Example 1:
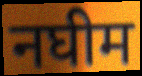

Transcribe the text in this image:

नघीम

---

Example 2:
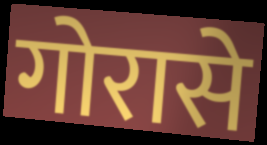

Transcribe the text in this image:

गोरासे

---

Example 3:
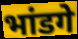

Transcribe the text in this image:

भांडगे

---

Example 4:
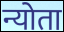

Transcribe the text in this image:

न्योता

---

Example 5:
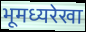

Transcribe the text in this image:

भूमध्यरेखा